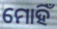
ମୋହିଁ